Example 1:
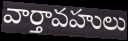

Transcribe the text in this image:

వార్తావహులు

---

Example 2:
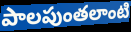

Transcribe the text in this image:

పాలపుంతలాంటి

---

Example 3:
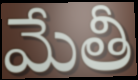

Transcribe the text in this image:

మేతీ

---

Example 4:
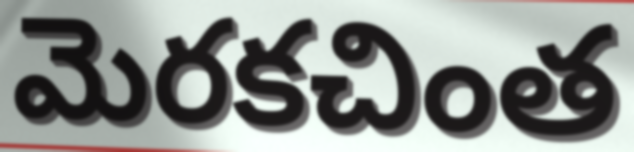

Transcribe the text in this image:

మెరకచింత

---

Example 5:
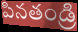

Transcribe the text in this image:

పినతండ్రి